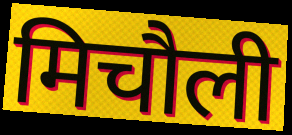
मिचौली